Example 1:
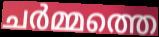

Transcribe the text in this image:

ചർമ്മത്തെ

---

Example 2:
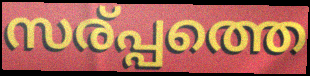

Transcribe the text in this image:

സര്പ്പത്തെ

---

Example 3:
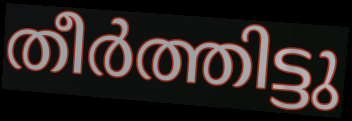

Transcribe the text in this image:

തീർത്തിട്ടു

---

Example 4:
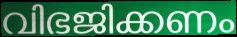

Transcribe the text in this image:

വിഭജിക്കണം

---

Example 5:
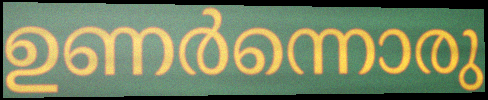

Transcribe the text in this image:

ഉണർന്നൊരു